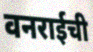
वनराईची